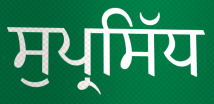
ਸੁਪ੍ਰਸਿੱਧ